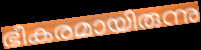
ഭീകരമായിരുന്നു